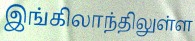
இங்கிலாந்திலுள்ள